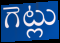
గెట్లు